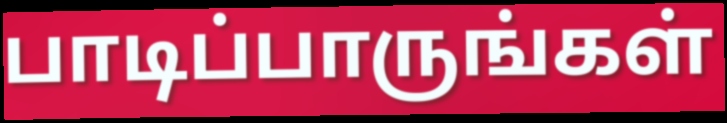
பாடிப்பாருங்கள்